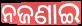
ନଜଣାଇ